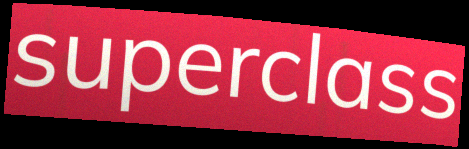
superclass